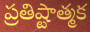
ప్రతిష్టాత్మక